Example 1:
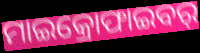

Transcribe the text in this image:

ମାଇକ୍ରୋଫାଇବର୍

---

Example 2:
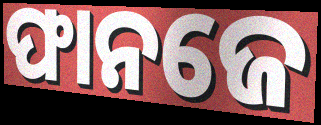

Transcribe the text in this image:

ଫାନଜେ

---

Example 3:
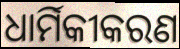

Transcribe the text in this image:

ଧାର୍ମିକୀକରଣ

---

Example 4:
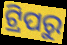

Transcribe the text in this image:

ଟ୍ରିପରୁ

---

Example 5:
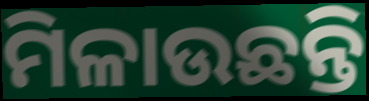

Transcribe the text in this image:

ମିଳାଉଛନ୍ତି